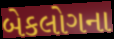
બેકલોગના